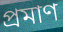
প্ৰমাণ